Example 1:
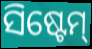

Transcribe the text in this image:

ସିଷ୍ଟେମ୍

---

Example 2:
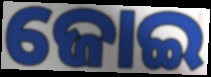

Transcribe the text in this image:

ଜୋଇ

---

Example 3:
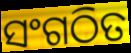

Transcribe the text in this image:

ସଂଗଠିତ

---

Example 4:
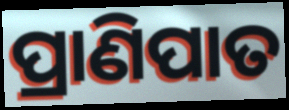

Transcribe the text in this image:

ପ୍ରାଣିପାତ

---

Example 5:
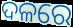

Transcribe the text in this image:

ଦଳରେ